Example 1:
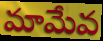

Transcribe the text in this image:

మామేవ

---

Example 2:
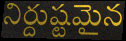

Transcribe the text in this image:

నిర్దుష్టమైన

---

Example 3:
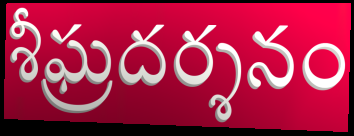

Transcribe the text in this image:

శీఘ్రదర్శనం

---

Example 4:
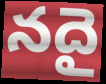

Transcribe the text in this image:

నదై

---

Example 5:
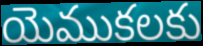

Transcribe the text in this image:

యెముకలకు